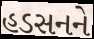
હડસનને